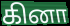
கினா